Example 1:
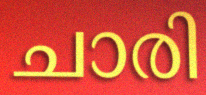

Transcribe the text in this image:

ചാരി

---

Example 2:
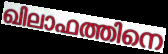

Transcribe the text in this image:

ഖിലാഫത്തിനെ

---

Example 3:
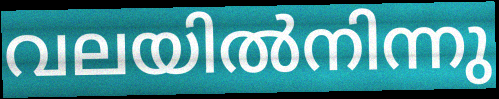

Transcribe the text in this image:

വലയിൽനിന്നു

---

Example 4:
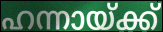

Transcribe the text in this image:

ഹന്നായ്ക്ക്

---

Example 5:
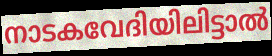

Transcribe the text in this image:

നാടകവേദിയിലിട്ടാൽ